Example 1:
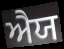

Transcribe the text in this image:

ਐਯ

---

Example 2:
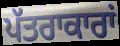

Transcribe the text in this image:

ਪੱਤਰਾਕਾਰਾਂ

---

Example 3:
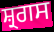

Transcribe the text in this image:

ਸ਼੍ਰਗਸ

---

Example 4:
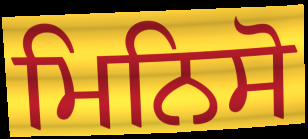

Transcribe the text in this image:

ਮਿਨਿਸੋ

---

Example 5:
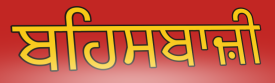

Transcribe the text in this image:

ਬਹਿਸਬਾਜ਼ੀ